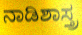
ನಾಡಿಶಾಸ್ತ್ರ